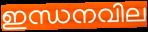
ഇന്ധനവില